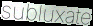
subluxate